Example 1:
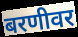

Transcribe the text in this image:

बरणीवर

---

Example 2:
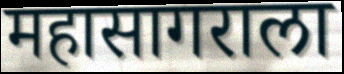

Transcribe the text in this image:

महासागराला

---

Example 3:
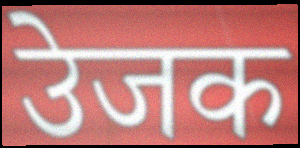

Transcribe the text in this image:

उेजक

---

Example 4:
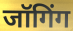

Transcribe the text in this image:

जॉगिंग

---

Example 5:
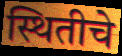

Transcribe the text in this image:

स्थितीचे